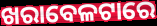
ଖରାବେଳଟାରେ